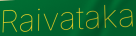
Raivataka